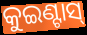
କୁଇଣ୍ଟାସ୍